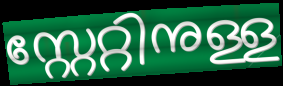
സ്റ്റേറ്റിനുള്ള